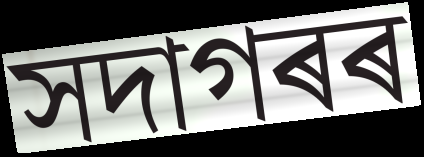
সদাগৰৰ